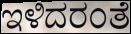
ಇಳಿದರಂತೆ